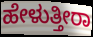
ಹೇಳುತ್ತೀರಾ